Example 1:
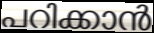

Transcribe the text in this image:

പറിക്കാൻ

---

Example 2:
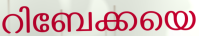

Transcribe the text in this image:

റിബേക്കയെ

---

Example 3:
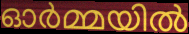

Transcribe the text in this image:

ഓർമ്മയിൽ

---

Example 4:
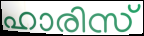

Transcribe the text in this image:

ഹാരിസ്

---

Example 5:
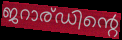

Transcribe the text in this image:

ജറാര്ഡിന്റെ